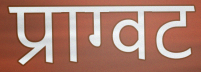
प्राग्वट